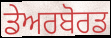
ਡੇਅਰਬੋਰਡ